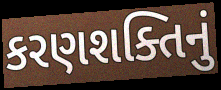
કરણશક્તિનું